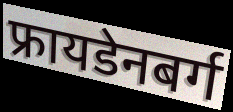
फ्रायडेनबर्ग